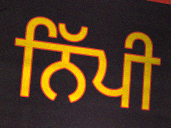
ਨਿੱਪੀ